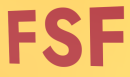
FSF